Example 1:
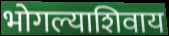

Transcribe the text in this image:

भोगल्याशिवाय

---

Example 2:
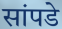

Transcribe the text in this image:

सांपडे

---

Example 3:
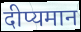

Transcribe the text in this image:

दीप्यमान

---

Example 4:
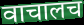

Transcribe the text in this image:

वाचालच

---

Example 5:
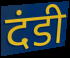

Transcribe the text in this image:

दंडी